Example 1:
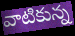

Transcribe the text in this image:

వాటికున్న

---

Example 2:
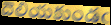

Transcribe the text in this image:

దెలియకుండఁ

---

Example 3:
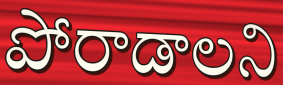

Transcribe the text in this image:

పోరాడాలని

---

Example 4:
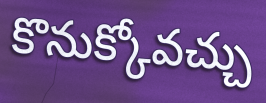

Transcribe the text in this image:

కొనుక్కోవచ్చు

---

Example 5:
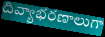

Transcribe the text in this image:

దివ్యాభరణాలుగా